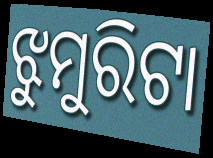
ଝୁମୁରିଟା